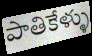
పాతికేళ్ళు